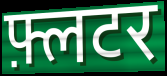
फ़्लटर